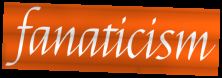
fanaticism